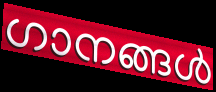
ഗാനങ്ങൾ